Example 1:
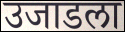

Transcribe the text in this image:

उजाडला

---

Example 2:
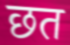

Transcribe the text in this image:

छत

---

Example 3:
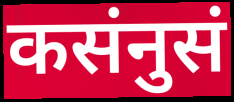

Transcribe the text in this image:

कसंनुसं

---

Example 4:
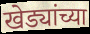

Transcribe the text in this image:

खेड्यांच्या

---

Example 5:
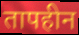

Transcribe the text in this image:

तापहीन